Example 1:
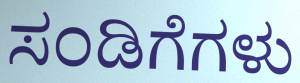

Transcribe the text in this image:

ಸಂಡಿಗೆಗಳು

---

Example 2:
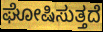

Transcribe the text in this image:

ಘೋಷಿಸುತ್ತದೆ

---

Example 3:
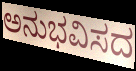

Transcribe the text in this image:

ಅನುಭವಿಸದ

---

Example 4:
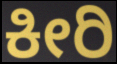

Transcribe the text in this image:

ಕೀರಿ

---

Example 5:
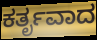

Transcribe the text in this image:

ಕರ್ತೃವಾದ